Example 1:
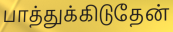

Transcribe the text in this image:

பாத்துக்கிடுதேன்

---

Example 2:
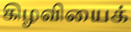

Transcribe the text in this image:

கிழவியைக்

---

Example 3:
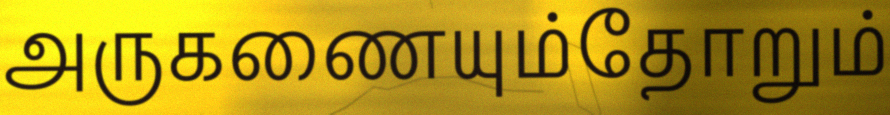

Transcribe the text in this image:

அருகணையும்தோறும்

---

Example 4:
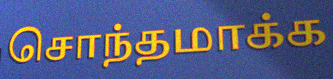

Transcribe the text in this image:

சொந்தமாக்க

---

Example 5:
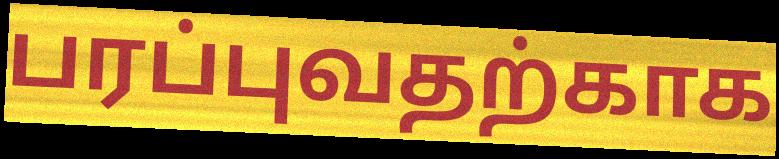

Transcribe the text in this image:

பரப்புவதற்காக